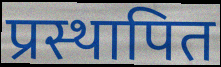
प्रस्थापित